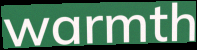
warmth